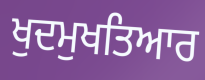
ਖੁਦਮੁਖਤਿਆਰ